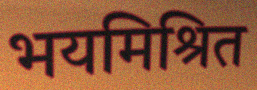
भयमिश्रित